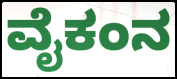
ವೈಕಂನ